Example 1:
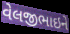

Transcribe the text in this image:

વેલજીભાઇને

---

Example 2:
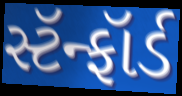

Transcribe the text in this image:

સ્ટૅન્ફૉર્ડ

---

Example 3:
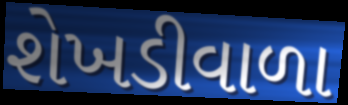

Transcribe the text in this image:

શેખડીવાળા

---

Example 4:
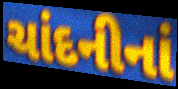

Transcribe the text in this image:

ચાંદનીનાં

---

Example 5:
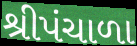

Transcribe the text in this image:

શ્રીપંચાળા